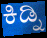
ಕಿಡ್ನಿ